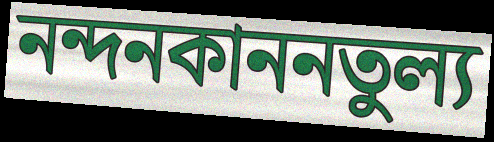
নন্দনকাননতুল্য